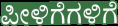
ಪೀಳಿಗೆಗಳಿಗೆ